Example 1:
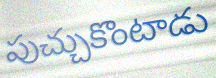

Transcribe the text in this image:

పుచ్చుకొంటాడు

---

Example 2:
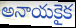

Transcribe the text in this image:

అనాయకైక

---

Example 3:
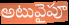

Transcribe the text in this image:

అటువైపూ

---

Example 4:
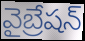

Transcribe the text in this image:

వైబ్రేషన్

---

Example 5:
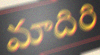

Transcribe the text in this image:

మాదిరి